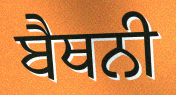
ਬੈਥਨੀ